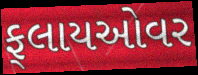
ફ્‌લાયઓવર